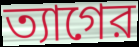
ত্যাগের